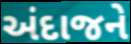
અંદાજને